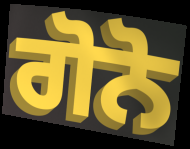
ਗੋਨੋ